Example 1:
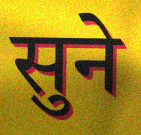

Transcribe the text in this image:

सुने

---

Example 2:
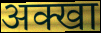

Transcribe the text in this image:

अक्खा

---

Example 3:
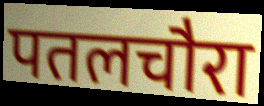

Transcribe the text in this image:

पतलचौरा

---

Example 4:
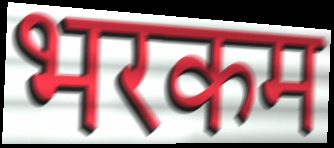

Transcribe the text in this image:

भरकम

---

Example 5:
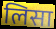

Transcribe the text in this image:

लिसा